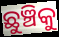
ଛୁଞ୍ଚିକୁ